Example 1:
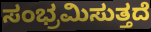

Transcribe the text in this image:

ಸಂಭ್ರಮಿಸುತ್ತದೆ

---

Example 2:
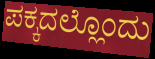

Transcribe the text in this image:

ಪಕ್ಕದಲ್ಲೊಂದು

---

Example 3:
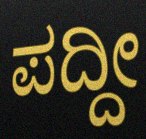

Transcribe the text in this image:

ಪದ್ದೀ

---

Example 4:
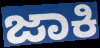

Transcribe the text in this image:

ಜಾಕಿ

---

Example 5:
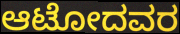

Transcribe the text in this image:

ಆಟೋದವರ